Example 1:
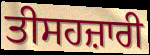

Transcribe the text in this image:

ਤੀਸਹਜ਼ਾਰੀ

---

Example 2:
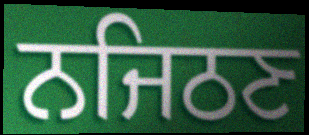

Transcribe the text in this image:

ਨਜਿਠਣ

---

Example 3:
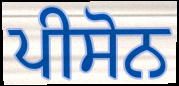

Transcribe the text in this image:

ਪੀਸੋਨ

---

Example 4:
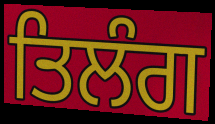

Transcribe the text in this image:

ਤਿਲੰਗ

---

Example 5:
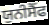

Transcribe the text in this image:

ਯੁਨੀਸੈੱਫ